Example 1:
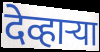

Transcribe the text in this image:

देव्हाऱ्या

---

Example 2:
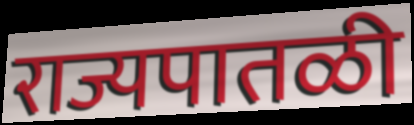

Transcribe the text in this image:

राज्यपातळी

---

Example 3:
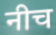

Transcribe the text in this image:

नीच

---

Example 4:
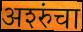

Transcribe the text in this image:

अश्रुंचा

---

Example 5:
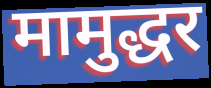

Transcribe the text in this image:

मामुद्धर